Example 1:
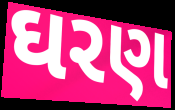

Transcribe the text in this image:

ઘરણ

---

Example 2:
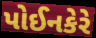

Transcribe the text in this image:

પોઈનકેરે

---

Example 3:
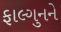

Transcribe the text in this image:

ફાલ્ગુનને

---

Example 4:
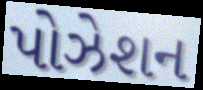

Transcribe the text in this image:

પોઝેશન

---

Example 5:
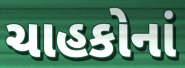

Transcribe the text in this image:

ચાહકોનાં